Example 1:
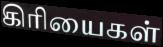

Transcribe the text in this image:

கிரியைகள்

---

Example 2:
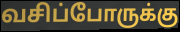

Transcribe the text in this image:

வசிப்போருக்கு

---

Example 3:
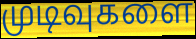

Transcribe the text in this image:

முடிவுகளை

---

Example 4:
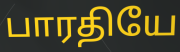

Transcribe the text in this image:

பாரதியே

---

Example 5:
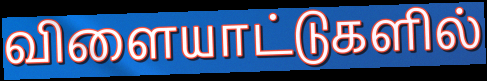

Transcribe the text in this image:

விளையாட்டுகளில்